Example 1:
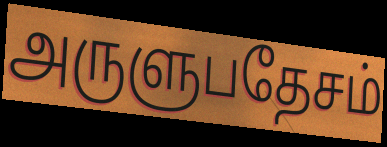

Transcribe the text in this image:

அருளுபதேசம்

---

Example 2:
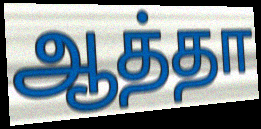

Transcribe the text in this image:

ஆத்தா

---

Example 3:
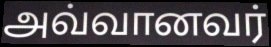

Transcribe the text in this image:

அவ்வானவர்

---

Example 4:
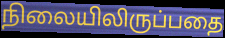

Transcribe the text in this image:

நிலையிலிருப்பதை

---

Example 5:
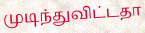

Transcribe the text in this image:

முடிந்துவிட்டதா